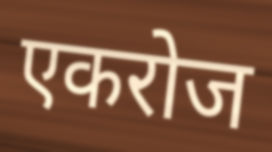
एकरोज